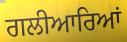
ਗਲੀਆਰਿਆਂ